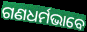
ଗଣଧର୍ମଭାବେ